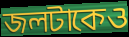
জলটাকেও